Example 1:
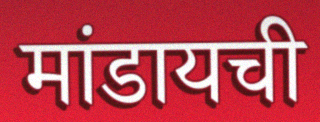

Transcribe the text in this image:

मांडायची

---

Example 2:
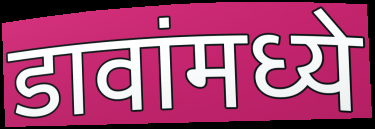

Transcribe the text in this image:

डावांमध्ये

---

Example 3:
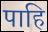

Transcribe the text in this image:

पाहि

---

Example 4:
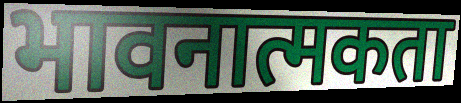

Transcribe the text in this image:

भावनात्मकता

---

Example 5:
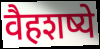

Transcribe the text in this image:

वैहशष्ये